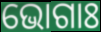
ଭୋଗାଃ